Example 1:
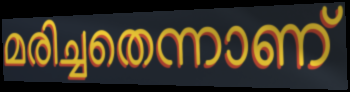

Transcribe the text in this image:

മരിച്ചതെന്നാണ്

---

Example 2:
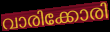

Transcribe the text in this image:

വാരിക്കോരി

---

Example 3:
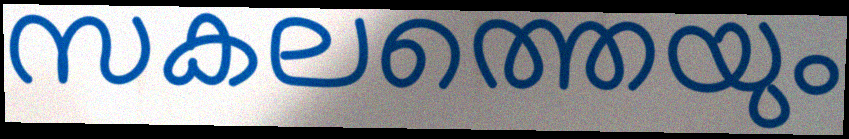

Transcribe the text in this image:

സകലത്തെയും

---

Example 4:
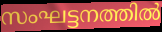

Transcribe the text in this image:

സംഘട്ടനത്തിൽ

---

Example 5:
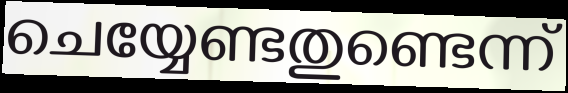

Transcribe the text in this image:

ചെയ്യേണ്ടതുണ്ടെന്ന്